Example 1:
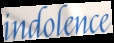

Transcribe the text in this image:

indolence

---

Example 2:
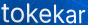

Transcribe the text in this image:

tokekar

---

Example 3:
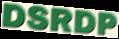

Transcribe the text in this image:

DSRDP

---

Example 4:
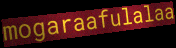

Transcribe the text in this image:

mogaraafulalaa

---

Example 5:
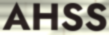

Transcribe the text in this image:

AHSS